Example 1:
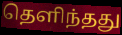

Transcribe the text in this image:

தெளிந்தது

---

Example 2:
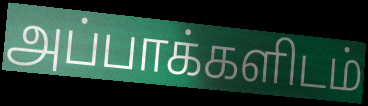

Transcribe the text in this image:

அப்பாக்களிடம்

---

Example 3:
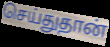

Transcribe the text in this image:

செய்துதான்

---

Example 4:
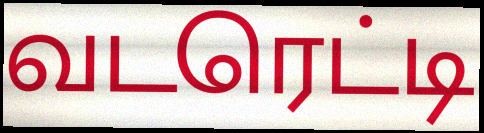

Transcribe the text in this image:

வடரெட்டி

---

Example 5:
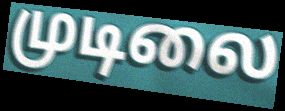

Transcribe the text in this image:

முடிலை